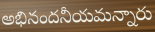
అభినందనీయమన్నారు